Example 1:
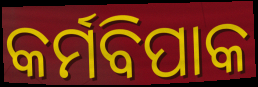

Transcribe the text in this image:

କର୍ମବିପାକ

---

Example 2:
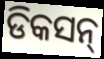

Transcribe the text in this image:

ଡିକସନ୍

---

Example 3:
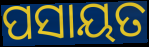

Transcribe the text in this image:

ପସାୟତ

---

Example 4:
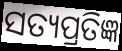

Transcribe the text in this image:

ସତ୍ୟପ୍ରତିଜ୍ଞ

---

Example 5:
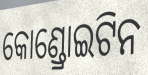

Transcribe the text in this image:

କୋଣ୍ଡ୍ରୋଇଟିନ